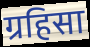
ग्रहिसा